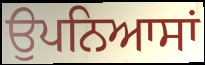
ਉਪਨਿਆਸਾਂ